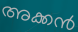
അക്കൻ